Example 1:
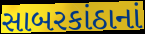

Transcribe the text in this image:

સાબરકાંઠાનાં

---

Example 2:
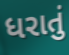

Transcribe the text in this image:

ધરાતું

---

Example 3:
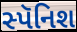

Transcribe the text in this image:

સ્પૅનિશ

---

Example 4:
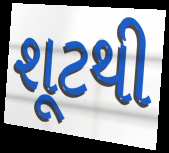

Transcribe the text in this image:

શૂટથી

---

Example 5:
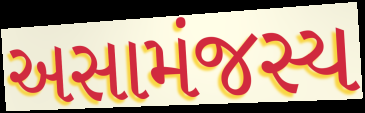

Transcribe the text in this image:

અસામંજસ્ય